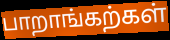
பாறாங்கற்கள்